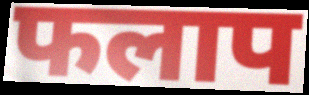
फलाप